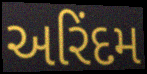
અરિંદમ